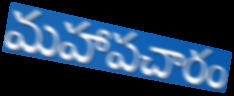
మహాపచారం